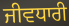
ਜੀਵਧਾਰੀ